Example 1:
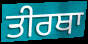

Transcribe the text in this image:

ਤੀਰਥਾ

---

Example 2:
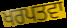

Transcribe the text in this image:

ਖਰਪਤਵਾ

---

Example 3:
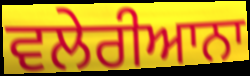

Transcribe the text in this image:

ਵਲੇਰੀਆਨਾ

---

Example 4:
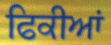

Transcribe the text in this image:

ਫਿਕੀਆਂ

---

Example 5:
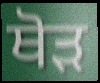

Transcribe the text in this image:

ਥੋੜ